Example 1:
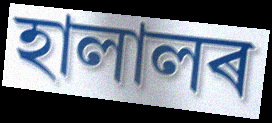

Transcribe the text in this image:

হালালৰ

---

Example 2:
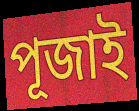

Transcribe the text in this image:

পূজাই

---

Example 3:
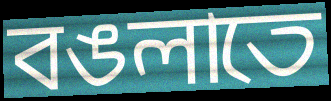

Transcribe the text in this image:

বঙলাতে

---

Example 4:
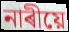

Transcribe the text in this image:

নাৰীয়ে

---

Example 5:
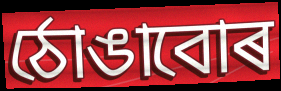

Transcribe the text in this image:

ঠোঙাবোৰ